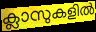
ക്ലാസുകളിൽ